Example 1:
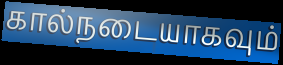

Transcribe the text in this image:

கால்நடையாகவும்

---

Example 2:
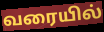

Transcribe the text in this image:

வரையில்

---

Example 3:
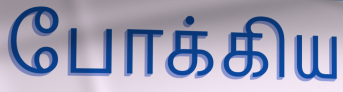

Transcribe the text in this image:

போக்கிய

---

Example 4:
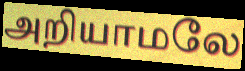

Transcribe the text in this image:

அறியாமலே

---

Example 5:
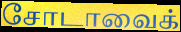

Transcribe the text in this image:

சோடாவைக்